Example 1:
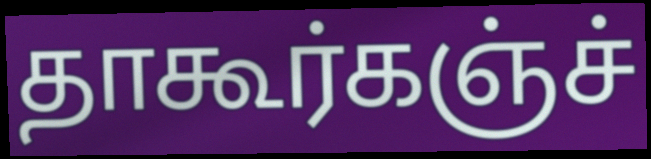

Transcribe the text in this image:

தாகூர்கஞ்ச்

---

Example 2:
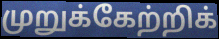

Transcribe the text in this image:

முறுக்கேற்றிக்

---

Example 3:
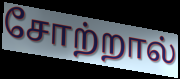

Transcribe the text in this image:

சோற்றால்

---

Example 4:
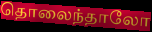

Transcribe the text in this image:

தொலைந்தாலோ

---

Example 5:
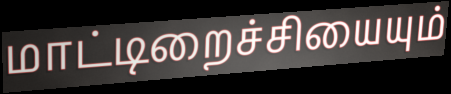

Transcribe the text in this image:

மாட்டிறைச்சியையும்